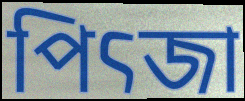
পিৎজা